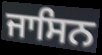
ਜਾਸਿਨ